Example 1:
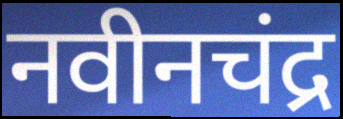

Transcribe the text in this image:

नवीनचंद्र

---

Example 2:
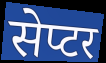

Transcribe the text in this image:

सेप्टर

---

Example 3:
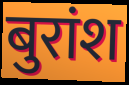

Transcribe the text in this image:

बुरांश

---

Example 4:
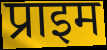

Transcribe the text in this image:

प्राइम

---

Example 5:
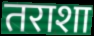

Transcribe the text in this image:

तराशा